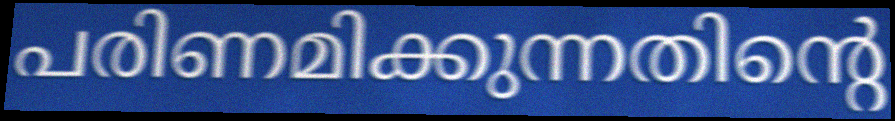
പരിണമിക്കുന്നതിന്റെ